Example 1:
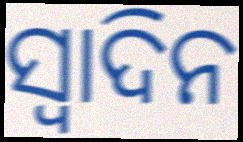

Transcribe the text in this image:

ସ୍ବାଦିନ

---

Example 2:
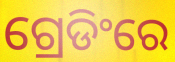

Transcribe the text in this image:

ଗ୍ରେଡିଂରେ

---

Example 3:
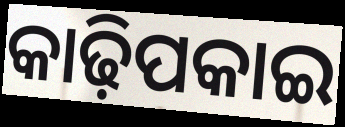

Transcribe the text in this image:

କାଢ଼ିପକାଇ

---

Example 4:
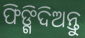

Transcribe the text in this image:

ଫିଙ୍ଗିଦିଅନ୍ତୁ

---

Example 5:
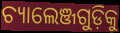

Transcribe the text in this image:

ଚ୍ୟାଲେଞ୍ଜଗୁଡ଼ିକୁ